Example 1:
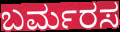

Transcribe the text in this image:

ಬರ್ಮರಸ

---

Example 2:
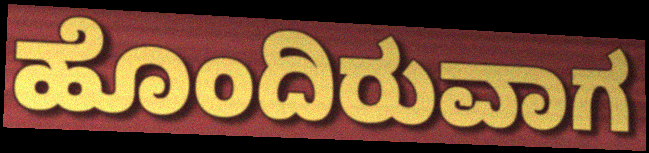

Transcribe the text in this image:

ಹೊಂದಿರುವಾಗ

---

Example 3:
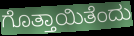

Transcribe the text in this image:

ಗೊತ್ತಾಯಿತೆಂದು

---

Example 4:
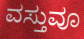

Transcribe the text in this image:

ವಸ್ತುವೂ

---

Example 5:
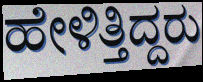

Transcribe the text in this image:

ಹೇಳಿತ್ತಿದ್ದರು